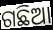
ଗଛିଆ